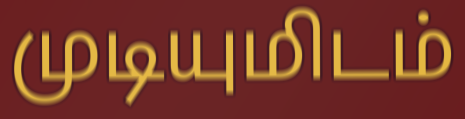
முடியுமிடம்